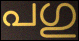
പഗു